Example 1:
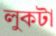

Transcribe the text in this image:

লুকটা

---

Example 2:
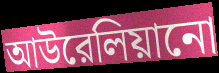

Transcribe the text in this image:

আউরেলিয়ানো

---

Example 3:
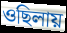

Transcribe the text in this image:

ওছিলায়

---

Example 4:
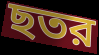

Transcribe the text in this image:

ছতর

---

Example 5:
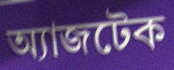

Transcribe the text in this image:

অ্যাজটেক